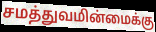
சமத்துவமின்மைக்கு